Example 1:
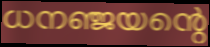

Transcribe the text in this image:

ധനഞ്ജയന്റെ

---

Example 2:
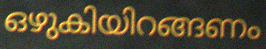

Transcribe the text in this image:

ഒഴുകിയിറങ്ങണം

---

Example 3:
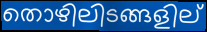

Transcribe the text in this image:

തൊഴിലിടങ്ങളില്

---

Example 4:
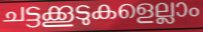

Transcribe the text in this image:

ചട്ടക്കൂടുകളെല്ലാം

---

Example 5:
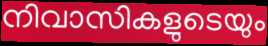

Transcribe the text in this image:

നിവാസികളുടെയും